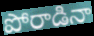
పోరాడినా